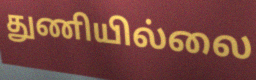
துணியில்லை